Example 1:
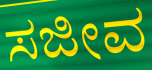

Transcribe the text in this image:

ಸಜೀವ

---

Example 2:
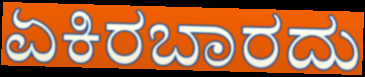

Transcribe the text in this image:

ಏಕಿರಬಾರದು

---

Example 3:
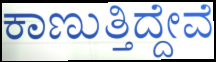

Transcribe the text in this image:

ಕಾಣುತ್ತಿದ್ದೇವೆ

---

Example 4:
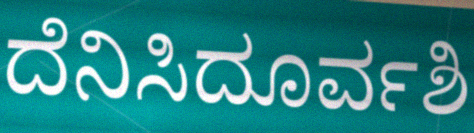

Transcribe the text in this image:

ದೆನಿಸಿದೂರ್ವಶಿ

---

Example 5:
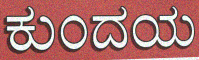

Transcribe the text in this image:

ಕುಂದಯ